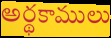
అర్థకాములు